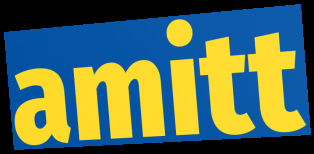
amitt